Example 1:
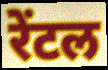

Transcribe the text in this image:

रेंटल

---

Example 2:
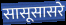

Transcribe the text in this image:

सासूसासरे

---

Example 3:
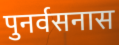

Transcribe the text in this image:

पुनर्वसनास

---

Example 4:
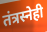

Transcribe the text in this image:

तंत्रस्नेही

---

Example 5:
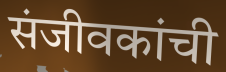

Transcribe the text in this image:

संजीवकांची